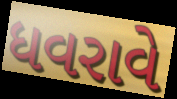
ધવરાવે